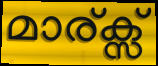
മാര്ക്സ്